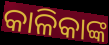
କାଳିକାଙ୍କ